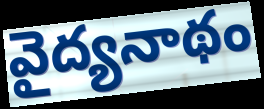
వైద్యనాథం